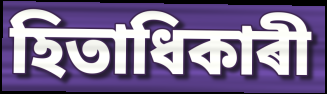
হিতাধিকাৰী